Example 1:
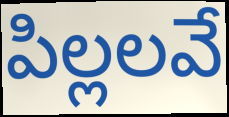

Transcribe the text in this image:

పిల్లలవే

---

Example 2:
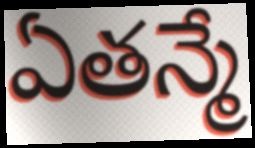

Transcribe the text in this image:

ఏతన్మే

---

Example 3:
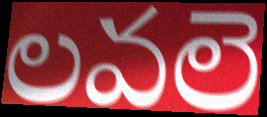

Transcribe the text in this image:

లవలె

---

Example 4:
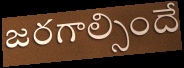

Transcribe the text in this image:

జరగాల్సిందే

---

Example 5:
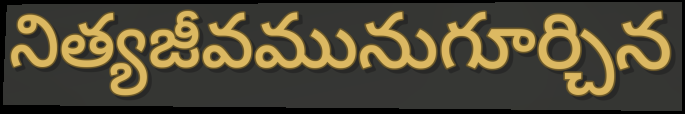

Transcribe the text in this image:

నిత్యజీవమునుగూర్చిన